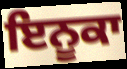
ਇਨੂਕਾ